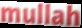
mullah